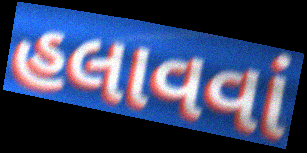
હલાવવાં